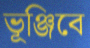
ভূঞ্জিবে